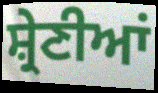
ਸ਼੍ਰੇਣੀਆਂ